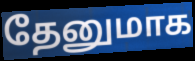
தேனுமாக